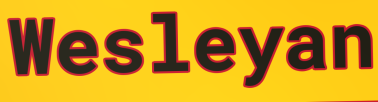
Wesleyan